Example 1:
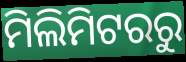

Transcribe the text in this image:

ମିଲିମିଟରରୁ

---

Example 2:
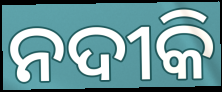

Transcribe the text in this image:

ନଦୀକି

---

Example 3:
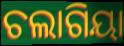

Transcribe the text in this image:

ଚଲାଗିୟା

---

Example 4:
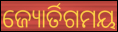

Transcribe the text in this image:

ଜ୍ୟୋର୍ତିଗମୟ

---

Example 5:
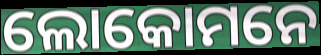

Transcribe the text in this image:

ଲୋକୋମନେ